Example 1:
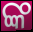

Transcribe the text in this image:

ଙ୍କ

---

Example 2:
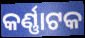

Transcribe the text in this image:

କର୍ଣ୍ଣାଟକ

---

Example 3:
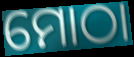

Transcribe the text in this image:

ମୋଠା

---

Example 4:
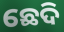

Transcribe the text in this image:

ଛେଦି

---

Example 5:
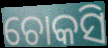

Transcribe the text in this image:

ଚୋକସି